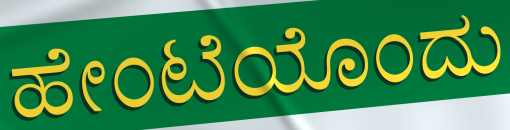
ಹೇಂಟೆಯೊಂದು